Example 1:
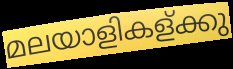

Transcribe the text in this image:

മലയാളികള്ക്കു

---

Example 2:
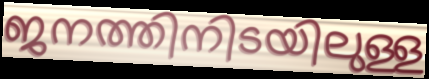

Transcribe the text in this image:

ജനത്തിനിടയിലുള്ള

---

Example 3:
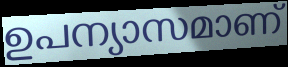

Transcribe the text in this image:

ഉപന്യാസമാണ്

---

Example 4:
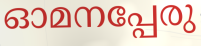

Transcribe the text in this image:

ഓമനപ്പേരു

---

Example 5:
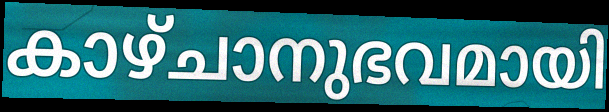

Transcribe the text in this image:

കാഴ്ചാനുഭവമായി